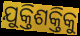
ଯୁକ୍ତିଶକ୍ତିକୁ